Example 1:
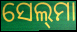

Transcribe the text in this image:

ସେଲ୍‌ମା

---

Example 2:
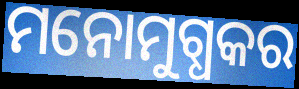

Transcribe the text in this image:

ମନୋମୁଗ୍ଧକର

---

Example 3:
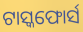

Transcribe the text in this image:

ଟାସ୍କଫୋର୍ସ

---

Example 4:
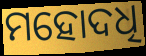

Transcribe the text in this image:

ମହୋଦଧି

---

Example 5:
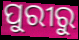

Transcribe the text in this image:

ପୁରୀରୁ